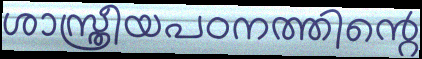
ശാസ്ത്രീയപഠനത്തിന്റെ